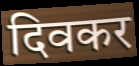
दिवकर